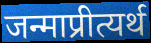
जन्माप्रीत्यर्थ